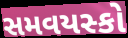
સમવયસ્કો